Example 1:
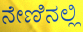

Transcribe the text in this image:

ನೇಣಿನಲ್ಲಿ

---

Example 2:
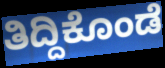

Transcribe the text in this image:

ತಿದ್ದಿಕೊಂಡೆ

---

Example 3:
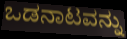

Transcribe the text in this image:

ಒಡನಾಟವನ್ನು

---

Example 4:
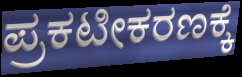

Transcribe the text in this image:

ಪ್ರಕಟೀಕರಣಕ್ಕೆ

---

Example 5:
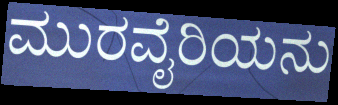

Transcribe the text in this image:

ಮುರವೈರಿಯನು